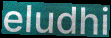
eludhi